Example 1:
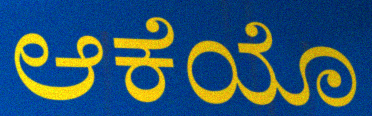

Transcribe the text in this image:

ಆಕೆಯೊ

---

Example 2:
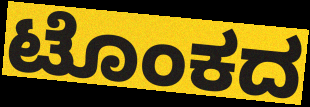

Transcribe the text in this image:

ಟೊಂಕದ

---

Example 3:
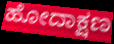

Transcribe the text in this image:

ಹೋದಾಕ್ಷಣ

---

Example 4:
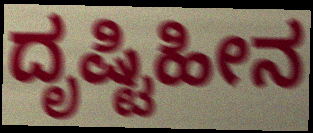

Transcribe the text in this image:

ದೃಷ್ಟಿಹೀನ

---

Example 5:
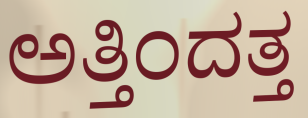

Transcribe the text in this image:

ಅತ್ತಿಂದತ್ತ